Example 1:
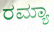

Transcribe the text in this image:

ರಮ್ಯಾ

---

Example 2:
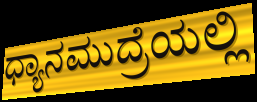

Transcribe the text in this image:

ಧ್ಯಾನಮುದ್ರೆಯಲ್ಲಿ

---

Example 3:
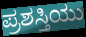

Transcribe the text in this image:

ಪ್ರಶಸ್ತಿಯು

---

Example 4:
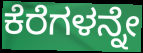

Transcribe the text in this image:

ಕೆರೆಗಳನ್ನೇ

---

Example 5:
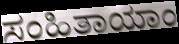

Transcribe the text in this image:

ಸಂಹಿತಾಯಾಂ